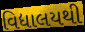
વિદ્યાલયથી